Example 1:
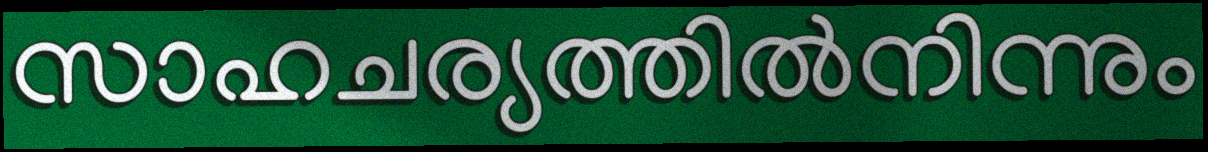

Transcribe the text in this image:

സാഹചര്യത്തിൽനിന്നും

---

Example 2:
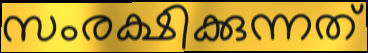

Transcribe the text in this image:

സംരക്ഷിക്കുന്നത്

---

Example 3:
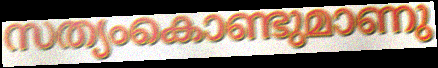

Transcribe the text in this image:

സത്യംകൊണ്ടുമാണു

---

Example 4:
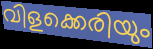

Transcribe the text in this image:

വിളക്കെരിയും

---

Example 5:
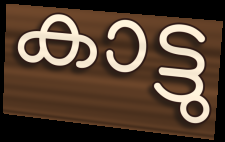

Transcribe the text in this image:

കാട്ടു